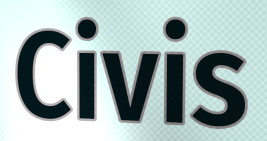
Civis